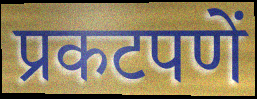
प्रकटपणें